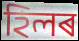
হিলৰ